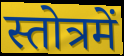
स्तोत्रमें